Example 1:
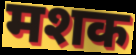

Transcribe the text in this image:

मशक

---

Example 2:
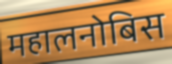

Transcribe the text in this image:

महालनोबिस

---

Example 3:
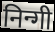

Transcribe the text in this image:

निन्गी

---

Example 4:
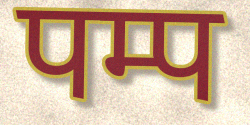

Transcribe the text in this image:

पम्प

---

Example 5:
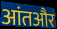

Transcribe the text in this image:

आंतऔर